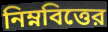
নিম্নবিত্তের